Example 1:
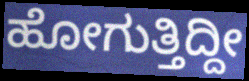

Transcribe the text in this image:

ಹೋಗುತ್ತಿದ್ದೀ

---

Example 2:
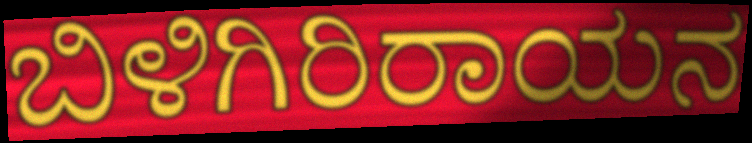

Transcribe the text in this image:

ಬಿಳಿಗಿರಿರಾಯನ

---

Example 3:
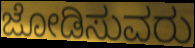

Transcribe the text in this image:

ಜೋಡಿಸುವರು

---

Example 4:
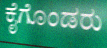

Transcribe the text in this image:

ಕೈಗೊಂಡರು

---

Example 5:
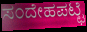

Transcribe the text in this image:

ಸಂದೇಹಪಟ್ಟೆ